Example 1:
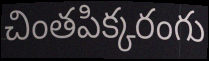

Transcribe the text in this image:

చింతపిక్కరంగు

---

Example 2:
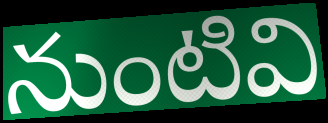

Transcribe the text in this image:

నుంటివి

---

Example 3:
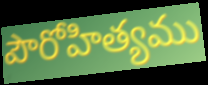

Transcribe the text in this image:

పౌరోహిత్యము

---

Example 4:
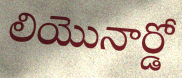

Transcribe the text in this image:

లియొనార్డో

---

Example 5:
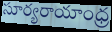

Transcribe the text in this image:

సూర్యరాయాంధ్ర